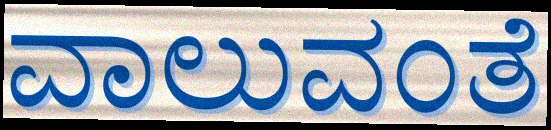
ವಾಲುವಂತೆ